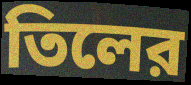
তিলের